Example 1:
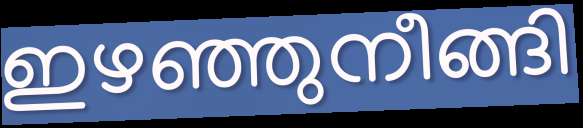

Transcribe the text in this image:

ഇഴഞ്ഞുനീങ്ങി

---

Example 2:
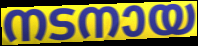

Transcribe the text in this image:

നടനായ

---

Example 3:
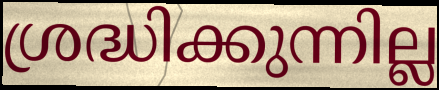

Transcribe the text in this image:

ശ്രദ്ധിക്കുന്നില്ല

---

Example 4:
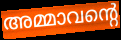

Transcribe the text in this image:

അമ്മാവന്റെ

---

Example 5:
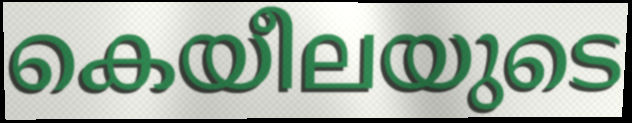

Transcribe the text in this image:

കെയീലയുടെ